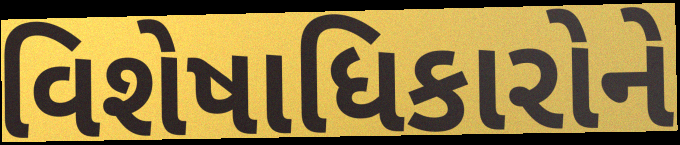
વિશેષાધિકારોને